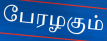
பேரழகும்